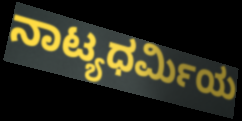
ನಾಟ್ಯಧರ್ಮಿಯ